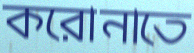
করোনাতে